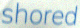
shored